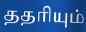
ததரியும்